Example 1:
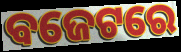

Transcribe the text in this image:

ବଜେଟରେ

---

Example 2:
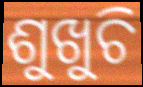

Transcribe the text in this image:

ଶୁଖୁଚି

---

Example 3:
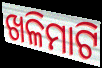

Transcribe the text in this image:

ଖଳିମାଟି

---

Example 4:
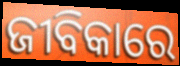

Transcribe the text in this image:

ଜୀବିକାରେ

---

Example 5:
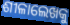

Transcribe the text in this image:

ଶୀଳାଲେଖକୁ